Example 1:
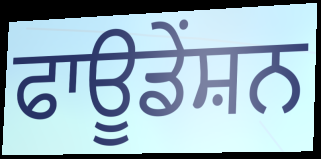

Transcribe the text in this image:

ਫਾਊਡੇਂਸ਼ਨ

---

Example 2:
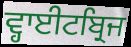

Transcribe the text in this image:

ਵ੍ਹਾਈਟਬ੍ਰਿਜ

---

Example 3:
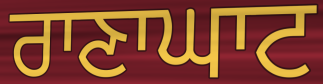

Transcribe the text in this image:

ਰਾਣਾਘਾਟ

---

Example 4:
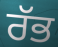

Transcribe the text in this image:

ਰੱਭ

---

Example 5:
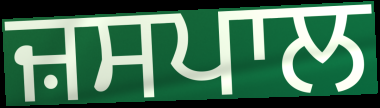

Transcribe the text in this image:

ਜ਼ਸਪਾਲ